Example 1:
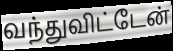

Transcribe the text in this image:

வந்துவிட்டேன்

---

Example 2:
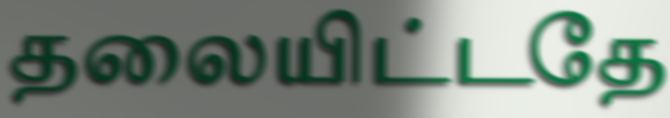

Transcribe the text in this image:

தலையிட்டதே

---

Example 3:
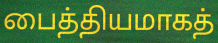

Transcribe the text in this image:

பைத்தியமாகத்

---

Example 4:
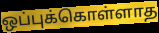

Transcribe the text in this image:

ஒப்புக்கொள்ளாத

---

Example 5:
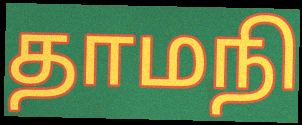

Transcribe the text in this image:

தாமநி